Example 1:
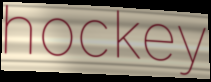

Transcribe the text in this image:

hockey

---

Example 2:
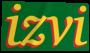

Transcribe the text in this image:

izvi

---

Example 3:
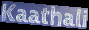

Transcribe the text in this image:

Kaathali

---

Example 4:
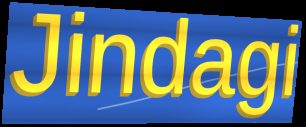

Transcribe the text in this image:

Jindagi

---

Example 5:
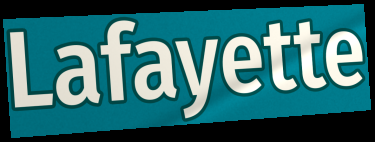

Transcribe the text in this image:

Lafayette